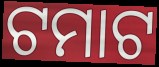
ଟମାଟ